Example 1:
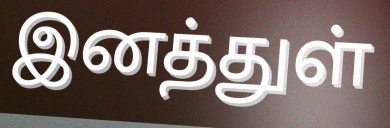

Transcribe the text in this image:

இனத்துள்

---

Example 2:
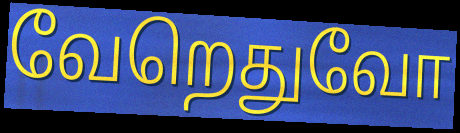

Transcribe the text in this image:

வேறெதுவோ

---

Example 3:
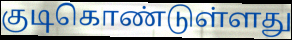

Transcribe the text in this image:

குடிகொண்டுள்ளது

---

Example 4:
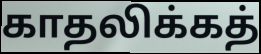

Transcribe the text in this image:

காதலிக்கத்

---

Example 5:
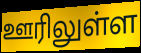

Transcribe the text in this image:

ஊரிலுள்ள